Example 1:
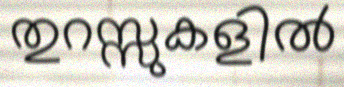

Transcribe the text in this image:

തുറസ്സുകളിൽ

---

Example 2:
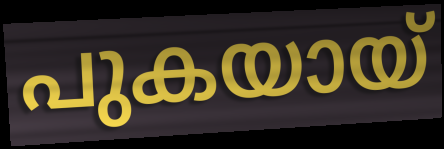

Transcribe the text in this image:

പുകയായ്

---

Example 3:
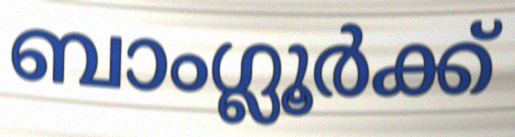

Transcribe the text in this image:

ബാംഗ്ലൂർക്ക്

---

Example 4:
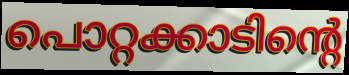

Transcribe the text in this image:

പൊറ്റക്കാടിന്റെ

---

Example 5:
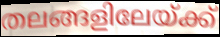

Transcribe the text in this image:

തലങ്ങളിലേയ്ക്ക്